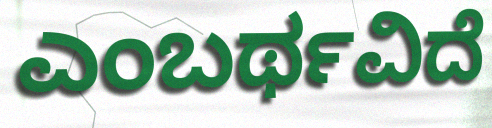
ಎಂಬರ್ಥವಿದೆ